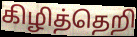
கிழித்தெறி